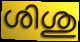
ശിശു